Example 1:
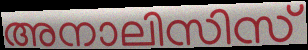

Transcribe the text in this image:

അനാലിസിസ്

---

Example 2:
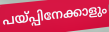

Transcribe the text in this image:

പയ്പ്പിനേക്കാളും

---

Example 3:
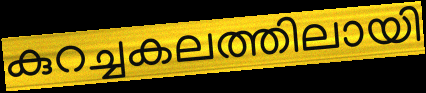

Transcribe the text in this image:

കുറച്ചകലത്തിലായി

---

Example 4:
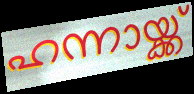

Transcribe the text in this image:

ഹന്നായ്ക്ക്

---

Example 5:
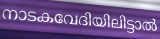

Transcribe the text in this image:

നാടകവേദിയിലിട്ടാൽ